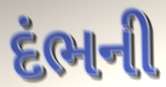
દંભની